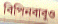
বিপিনবাবুও